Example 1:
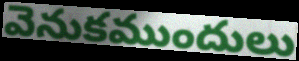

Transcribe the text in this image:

వెనుకముందులు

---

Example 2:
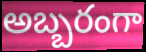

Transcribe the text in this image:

అబ్బరంగా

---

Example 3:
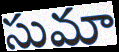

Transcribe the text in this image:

సుమా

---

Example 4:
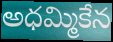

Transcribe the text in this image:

అధమ్మికేన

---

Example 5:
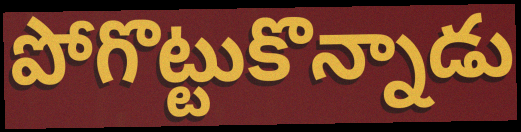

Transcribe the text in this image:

పోగొట్టుకొన్నాడు